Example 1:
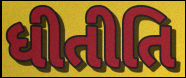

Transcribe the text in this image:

ધીતીતિ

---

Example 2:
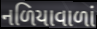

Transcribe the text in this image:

નળિયાવાળાં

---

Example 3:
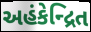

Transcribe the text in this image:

અહંકેન્દ્રિત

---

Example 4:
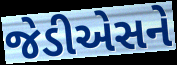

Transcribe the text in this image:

જેડીએસને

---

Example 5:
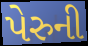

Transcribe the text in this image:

પેરુની